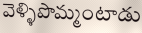
వెళ్ళిపొమ్మంటాడు